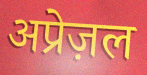
अप्रेज़ल